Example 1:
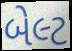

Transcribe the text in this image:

બેલ્ટ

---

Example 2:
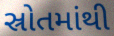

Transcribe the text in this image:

સ્રોતમાંથી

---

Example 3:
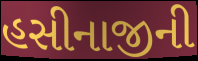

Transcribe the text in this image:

હસીનાજીની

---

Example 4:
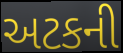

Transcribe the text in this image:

અટકની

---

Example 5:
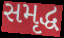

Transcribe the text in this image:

સમૃદ્ધ